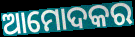
ଆମୋଦକର